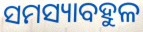
ସମସ୍ୟାବହୁଳ